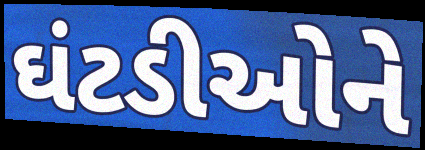
ઘંટડીઓને